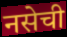
नसेची